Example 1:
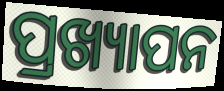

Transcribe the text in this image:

ପ୍ରଖ୍ୟାପନ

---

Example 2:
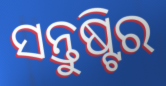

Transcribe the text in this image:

ସନ୍ତୁଷ୍ଟିର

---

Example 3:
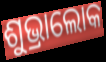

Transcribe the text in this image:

ଶୁଭ୍ରାଲୋକ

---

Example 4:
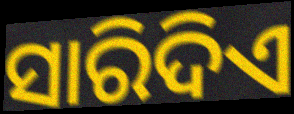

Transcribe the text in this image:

ସାରିଦିଏ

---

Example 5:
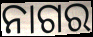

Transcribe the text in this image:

ନାଗର